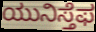
ಯುನಿಸ್ತೆಫ